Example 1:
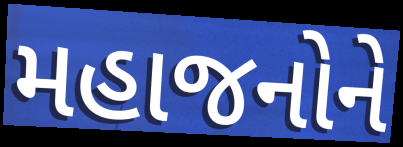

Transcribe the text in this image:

મહાજનોને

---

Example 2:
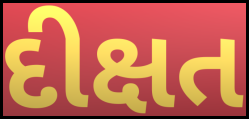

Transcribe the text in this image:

દીક્ષત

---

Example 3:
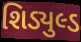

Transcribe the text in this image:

શિડ્યુલ્ડ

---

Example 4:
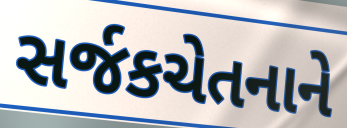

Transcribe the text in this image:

સર્જકચેતનાને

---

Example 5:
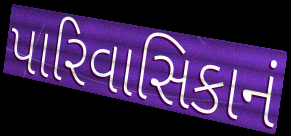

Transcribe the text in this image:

પારિવાસિકાનં